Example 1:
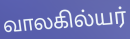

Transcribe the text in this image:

வாலகில்யர்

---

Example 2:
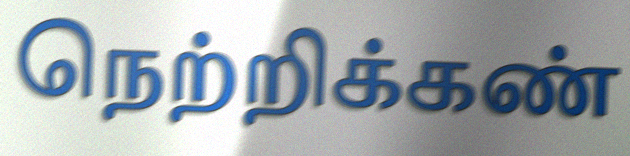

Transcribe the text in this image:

நெற்றிக்கண்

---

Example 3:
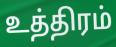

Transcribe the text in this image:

உத்திரம்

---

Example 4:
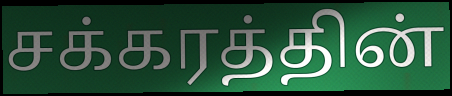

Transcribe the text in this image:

சக்கரத்தின்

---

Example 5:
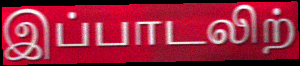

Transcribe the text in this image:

இப்பாடலிற்